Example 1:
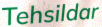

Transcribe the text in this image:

Tehsildar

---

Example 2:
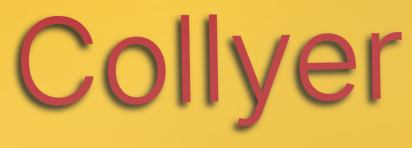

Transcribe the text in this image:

Collyer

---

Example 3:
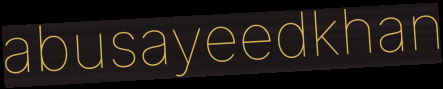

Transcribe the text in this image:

abusayeedkhan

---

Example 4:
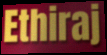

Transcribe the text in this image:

Ethiraj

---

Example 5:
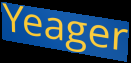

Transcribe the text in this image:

Yeager